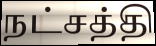
நட்சத்தி